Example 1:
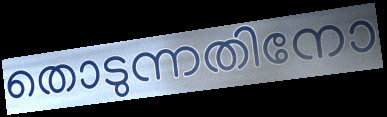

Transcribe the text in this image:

തൊടുന്നതിനോ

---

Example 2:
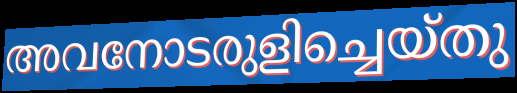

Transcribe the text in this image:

അവനോടരുളിച്ചെയ്തു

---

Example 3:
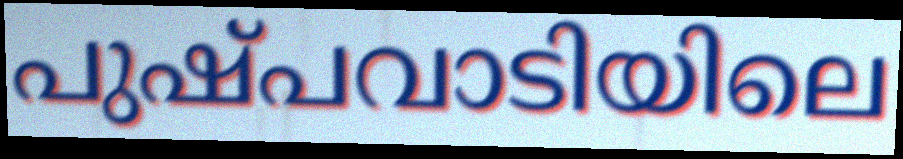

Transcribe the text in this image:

പുഷ്പവാടിയിലെ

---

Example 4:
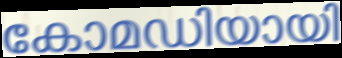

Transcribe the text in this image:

കോമഡിയായി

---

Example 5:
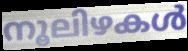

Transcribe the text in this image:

നൂലിഴകൾ